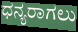
ಧನ್ಯರಾಗಲು